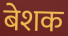
बेशक